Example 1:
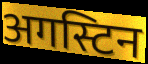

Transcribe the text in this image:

अगस्टिन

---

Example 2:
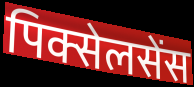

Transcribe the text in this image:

पिक्सेलसेंस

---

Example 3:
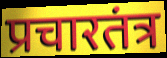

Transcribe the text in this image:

प्रचारतंत्र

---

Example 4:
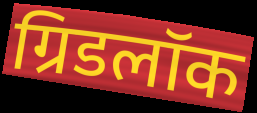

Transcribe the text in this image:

ग्रिडलॉक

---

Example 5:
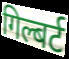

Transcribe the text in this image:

गिल्बर्ट